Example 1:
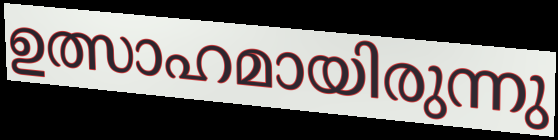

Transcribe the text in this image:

ഉത്സാഹമായിരുന്നു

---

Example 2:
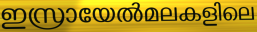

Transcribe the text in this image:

ഇസ്രായേൽമലകളിലെ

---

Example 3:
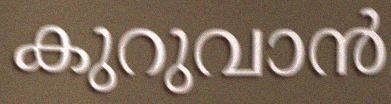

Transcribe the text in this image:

കുറുവാൻ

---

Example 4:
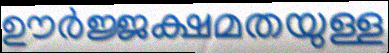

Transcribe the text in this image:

ഊർജ്ജക്ഷമതയുള്ള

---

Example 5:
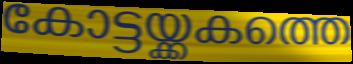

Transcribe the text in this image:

കോട്ടയ്ക്കകത്തെ